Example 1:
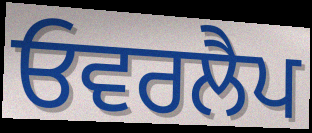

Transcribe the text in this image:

ਓਵਰਲੈਪ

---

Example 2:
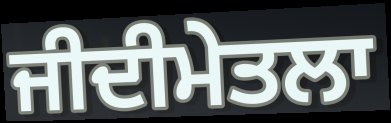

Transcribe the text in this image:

ਜੀਦੀਮੇਤਲਾ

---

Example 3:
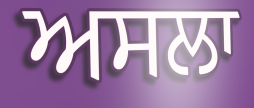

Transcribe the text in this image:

ਅਸਲਾ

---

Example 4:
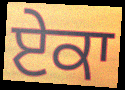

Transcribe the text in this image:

ਏਕਾ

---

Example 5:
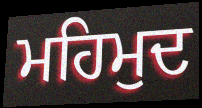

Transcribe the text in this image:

ਮਹਿਮੁਦ